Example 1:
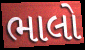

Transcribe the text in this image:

ભાલો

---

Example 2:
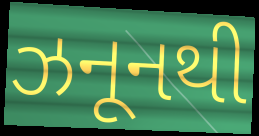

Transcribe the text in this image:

ઝનૂનથી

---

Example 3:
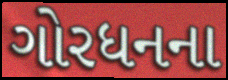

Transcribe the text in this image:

ગોરધનના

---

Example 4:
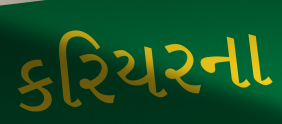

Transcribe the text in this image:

કરિયરના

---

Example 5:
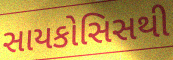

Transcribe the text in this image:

સાયકોસિસથી